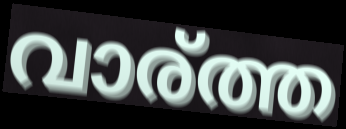
വാര്ത്ത